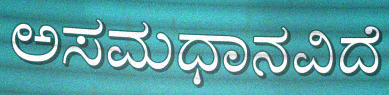
ಅಸಮಧಾನವಿದೆ